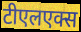
टीएलएक्स